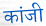
कांजी